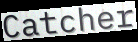
Catcher